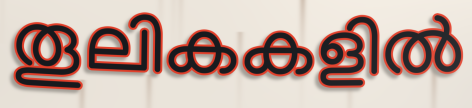
തൂലികകളിൽ